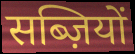
सब्ज़ियों